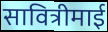
सावित्रीमाई